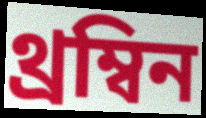
থ্রম্বিন